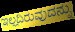
ಇಲ್ಲದಿರುವುದನ್ನು